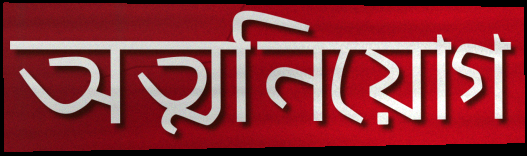
অত্মনিয়োগ